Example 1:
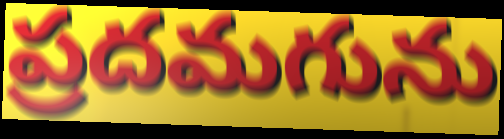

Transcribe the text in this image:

ప్రదమగును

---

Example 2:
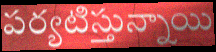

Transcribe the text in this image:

పర్యటిస్తున్నాయి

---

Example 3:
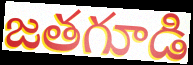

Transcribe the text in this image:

జతగూడి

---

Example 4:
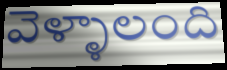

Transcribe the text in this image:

వెళ్ళాలంది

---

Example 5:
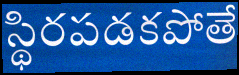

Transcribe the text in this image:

స్థిరపడకపోతే